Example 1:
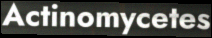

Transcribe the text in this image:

Actinomycetes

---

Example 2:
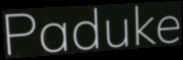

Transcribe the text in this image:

Paduke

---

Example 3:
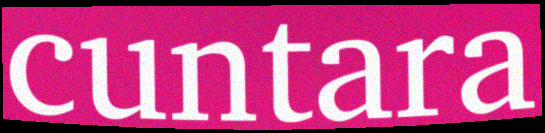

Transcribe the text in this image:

cuntara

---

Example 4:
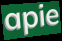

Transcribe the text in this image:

apie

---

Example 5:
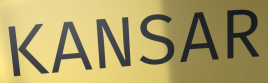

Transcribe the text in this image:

KANSAR